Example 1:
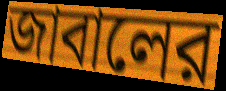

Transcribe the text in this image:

জাবালের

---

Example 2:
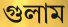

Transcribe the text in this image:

গুলাম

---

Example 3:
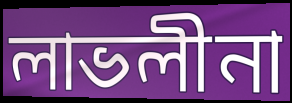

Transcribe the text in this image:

লাভলীনা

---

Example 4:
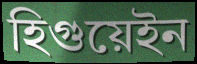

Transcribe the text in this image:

হিগুয়েইন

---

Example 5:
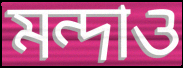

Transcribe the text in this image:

মন্দাও